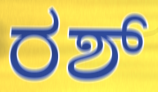
ರಶ್